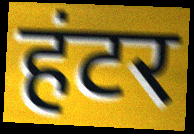
हंटर